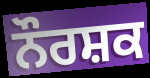
ਨੌਰਸ਼ਕ